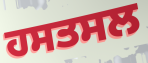
ਹਸਤਸਲ